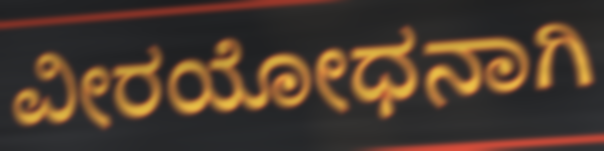
ವೀರಯೋಧನಾಗಿ